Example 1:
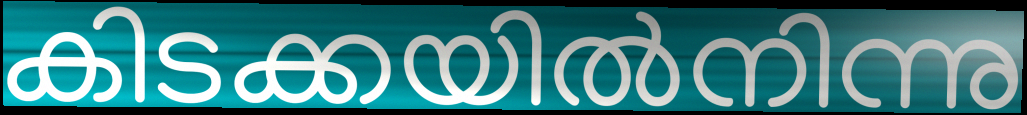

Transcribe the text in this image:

കിടക്കയിൽനിന്നു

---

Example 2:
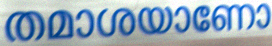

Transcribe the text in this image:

തമാശയാണോ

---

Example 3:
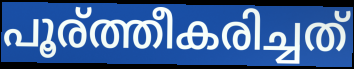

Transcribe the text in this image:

പൂര്ത്തീകരിച്ചത്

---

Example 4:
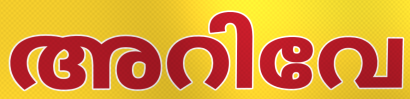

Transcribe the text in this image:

അറിവേ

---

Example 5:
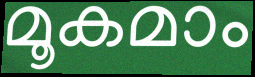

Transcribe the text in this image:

മൂകമാം